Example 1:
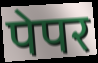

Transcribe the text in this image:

पेपर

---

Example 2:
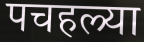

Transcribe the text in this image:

पचहल्या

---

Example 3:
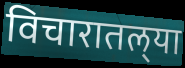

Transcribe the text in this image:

विचारातल्या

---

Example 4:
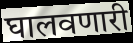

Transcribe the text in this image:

घालवणारी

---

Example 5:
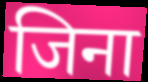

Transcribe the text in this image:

जिना